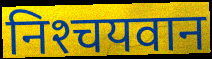
निश्चयवान